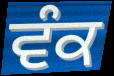
ਵੰਕ